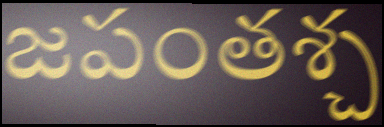
జపంతశ్చ